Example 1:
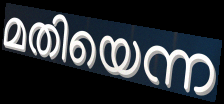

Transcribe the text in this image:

മതിയെന്ന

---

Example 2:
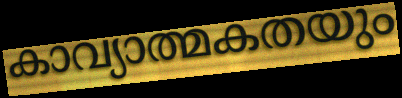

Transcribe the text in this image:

കാവ്യാത്മകതയും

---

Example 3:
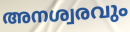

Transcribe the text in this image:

അനശ്വരവും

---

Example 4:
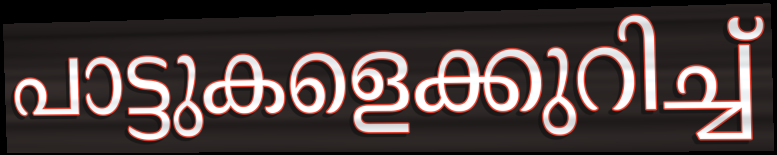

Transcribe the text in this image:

പാട്ടുകളെക്കുറിച്ച്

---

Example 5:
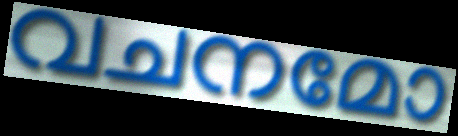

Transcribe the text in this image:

വചനമോ